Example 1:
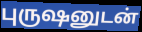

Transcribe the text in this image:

புருஷனுடன்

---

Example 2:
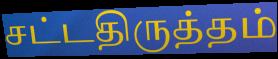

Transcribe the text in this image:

சட்டதிருத்தம்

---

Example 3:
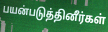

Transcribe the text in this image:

பயன்படுத்தினீர்கள்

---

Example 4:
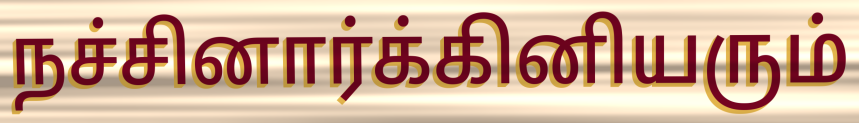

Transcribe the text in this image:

நச்சினார்க்கினியரும்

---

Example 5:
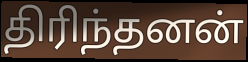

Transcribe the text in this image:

திரிந்தனன்